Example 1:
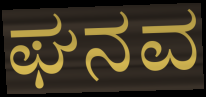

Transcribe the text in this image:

ಘನವ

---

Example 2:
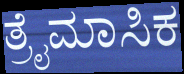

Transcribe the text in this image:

ತ್ರೈಮಾಸಿಕ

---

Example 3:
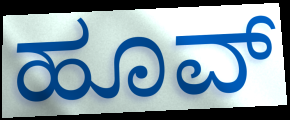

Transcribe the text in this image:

ಹೂವ್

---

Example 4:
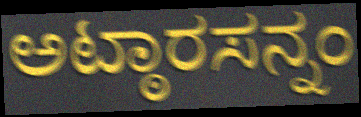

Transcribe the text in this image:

ಅಟ್ಠಾರಸನ್ನಂ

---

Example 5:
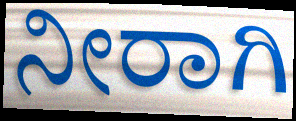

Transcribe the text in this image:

ನೀರಾಗಿ